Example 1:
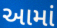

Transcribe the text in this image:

આમાં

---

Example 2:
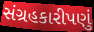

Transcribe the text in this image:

સંગ્રહકારીપણું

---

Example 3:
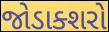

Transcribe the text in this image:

જોડાક્શરો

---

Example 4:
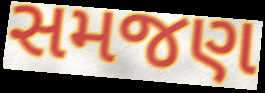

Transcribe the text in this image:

સમજણ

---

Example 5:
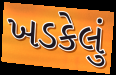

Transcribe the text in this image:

ખડકેલું